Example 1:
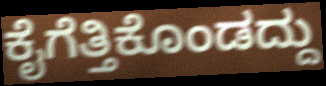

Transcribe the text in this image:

ಕೈಗೆತ್ತಿಕೊಂಡದ್ದು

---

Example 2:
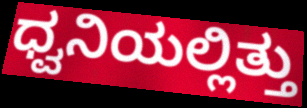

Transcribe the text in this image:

ಧ್ವನಿಯಲ್ಲಿತ್ತು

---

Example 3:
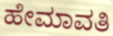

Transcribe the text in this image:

ಹೇಮಾವತಿ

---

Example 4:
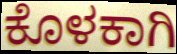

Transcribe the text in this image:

ಕೊಳಕಾಗಿ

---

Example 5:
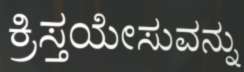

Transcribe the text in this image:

ಕ್ರಿಸ್ತಯೇಸುವನ್ನು